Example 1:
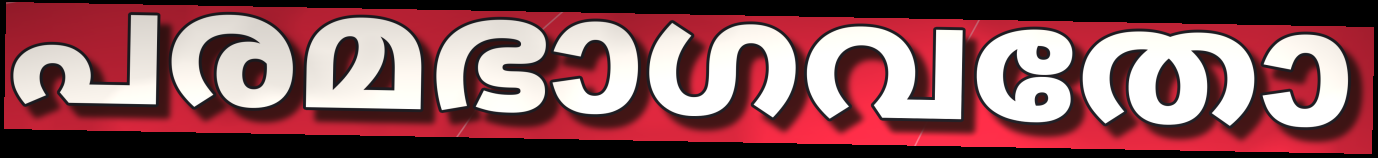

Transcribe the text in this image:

പരമഭാഗവതോ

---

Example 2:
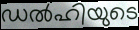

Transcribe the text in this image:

ഡൽഹിയുടെ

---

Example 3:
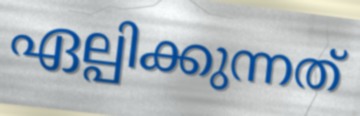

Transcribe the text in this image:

ഏല്പിക്കുന്നത്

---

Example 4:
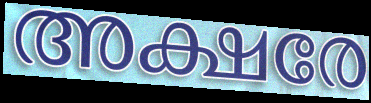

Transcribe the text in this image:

അക്ഷരേ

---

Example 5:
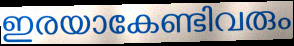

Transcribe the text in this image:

ഇരയാകേണ്ടിവരും